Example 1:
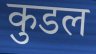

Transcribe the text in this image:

कुडल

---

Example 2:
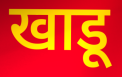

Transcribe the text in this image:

खाडू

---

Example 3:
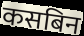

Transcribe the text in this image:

कसबिन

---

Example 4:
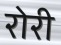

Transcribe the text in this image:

रोरी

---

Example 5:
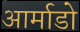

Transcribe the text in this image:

आर्माडो